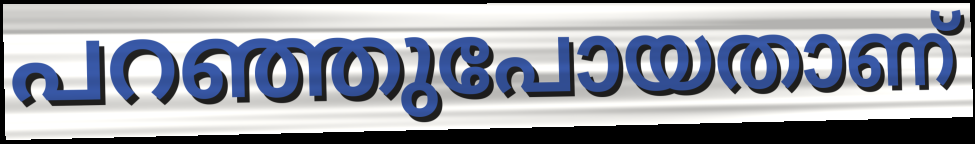
പറഞ്ഞുപോയതാണ്